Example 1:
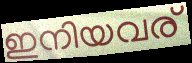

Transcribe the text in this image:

ഇനിയവര്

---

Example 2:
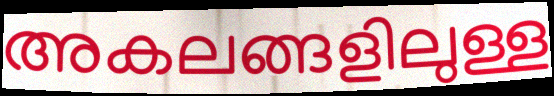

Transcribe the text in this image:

അകലങ്ങളിലുള്ള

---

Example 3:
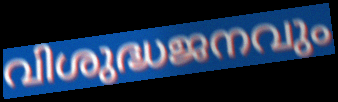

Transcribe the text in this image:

വിശുദ്ധജനവും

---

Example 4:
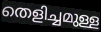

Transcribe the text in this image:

തെളിച്ചമുള്ള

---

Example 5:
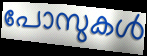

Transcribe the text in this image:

പോസുകൾ